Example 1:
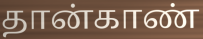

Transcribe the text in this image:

தான்காண்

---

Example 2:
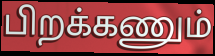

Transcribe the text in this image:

பிறக்கணும்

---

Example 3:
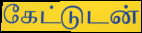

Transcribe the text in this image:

கேட்டுடன்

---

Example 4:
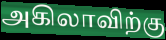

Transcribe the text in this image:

அகிலாவிற்கு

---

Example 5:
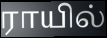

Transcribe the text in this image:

ராயில்